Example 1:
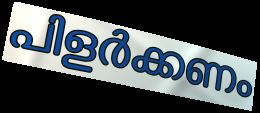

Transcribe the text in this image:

പിളർക്കണം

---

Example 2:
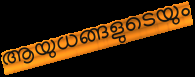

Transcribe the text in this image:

ആയുധങ്ങളുടെയും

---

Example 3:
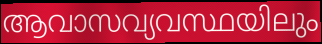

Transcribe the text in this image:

ആവാസവ്യവസ്ഥയിലും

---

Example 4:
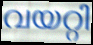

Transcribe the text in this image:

വയറ്റി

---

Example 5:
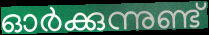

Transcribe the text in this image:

ഓർക്കുന്നുണ്ട്